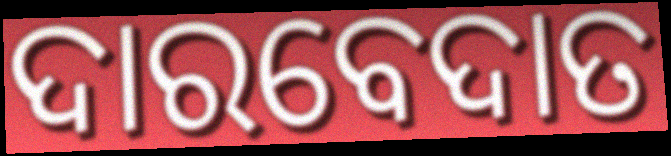
ଦାରବେଦାତ